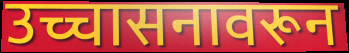
उच्चासनावरून